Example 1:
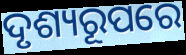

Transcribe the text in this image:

ଦୃଶ୍ୟରୂପରେ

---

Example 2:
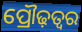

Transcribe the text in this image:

ପ୍ରୌଢ଼ତ୍ୱର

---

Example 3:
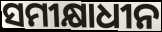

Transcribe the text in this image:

ସମୀକ୍ଷାଧୀନ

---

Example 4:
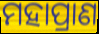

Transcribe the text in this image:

ମହାପ୍ରାଣ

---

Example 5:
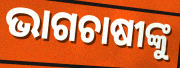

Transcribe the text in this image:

ଭାଗଚାଷୀଙ୍କୁ